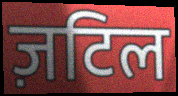
ज़टिल